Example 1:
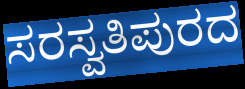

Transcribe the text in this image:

ಸರಸ್ವತಿಪುರದ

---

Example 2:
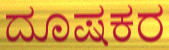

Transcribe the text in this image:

ದೂಷಕರ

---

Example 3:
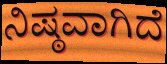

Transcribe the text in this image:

ನಿಷ್ಠವಾಗಿದೆ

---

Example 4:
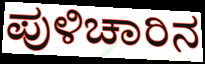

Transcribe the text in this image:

ಪುಳಿಚಾರಿನ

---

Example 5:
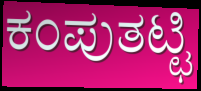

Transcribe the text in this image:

ಕಂಪುತಟ್ಟಿ